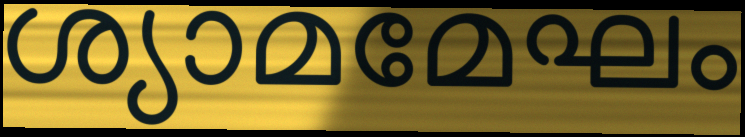
ശ്യാമമേഘം